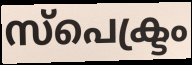
സ്പെക്ട്രം